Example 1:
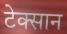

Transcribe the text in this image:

टेक्सान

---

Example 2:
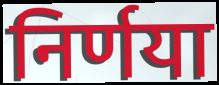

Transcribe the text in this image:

निर्णया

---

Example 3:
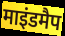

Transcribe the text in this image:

माइंडमैप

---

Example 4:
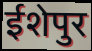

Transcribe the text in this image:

ईशेपुर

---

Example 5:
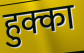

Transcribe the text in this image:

हुक्का